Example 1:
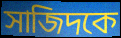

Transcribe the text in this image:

সাজিদকে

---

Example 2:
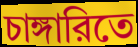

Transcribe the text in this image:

চাঙ্গারিতে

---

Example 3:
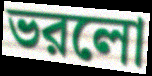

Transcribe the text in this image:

ভরলো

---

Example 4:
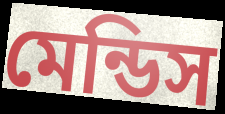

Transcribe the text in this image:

মেন্ডিস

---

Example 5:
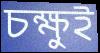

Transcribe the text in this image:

চক্ষুই